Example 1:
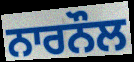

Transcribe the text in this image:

ਨਾਰਨੌਲ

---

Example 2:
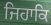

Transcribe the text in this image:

ਜਿਹਾਕਿ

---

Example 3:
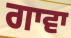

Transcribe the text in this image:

ਗਾਵਾ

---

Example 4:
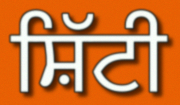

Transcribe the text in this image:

ਸ਼ਿੱਟੀ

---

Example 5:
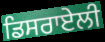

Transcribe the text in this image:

ਡਿਸਰਾਏਲੀ